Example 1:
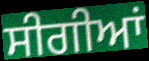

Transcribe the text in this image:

ਸੀਗੀਆਂ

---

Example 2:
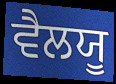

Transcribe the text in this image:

ਵੈਲਯੂ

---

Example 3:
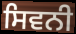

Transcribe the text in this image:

ਸਿਵਨੀ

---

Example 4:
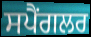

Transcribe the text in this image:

ਸਪੈਂਗਲਰ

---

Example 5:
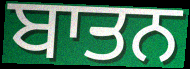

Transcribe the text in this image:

ਬਾਤਨ